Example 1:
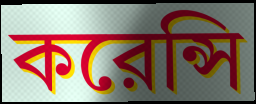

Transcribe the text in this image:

করেন্সি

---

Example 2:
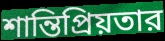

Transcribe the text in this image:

শান্তিপ্রিয়তার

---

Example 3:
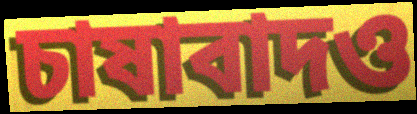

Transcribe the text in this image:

চাষাবাদও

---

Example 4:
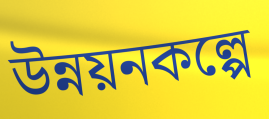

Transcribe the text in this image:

উন্নয়নকল্পে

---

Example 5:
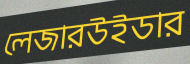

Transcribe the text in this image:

লেজারউইডার